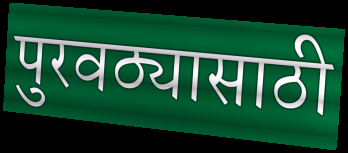
पुरवठ्यासाठी